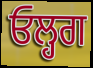
ਓਲ੍ਹਗ